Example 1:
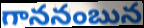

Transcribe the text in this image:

గాననంబున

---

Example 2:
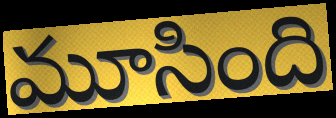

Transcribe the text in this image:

మూసింది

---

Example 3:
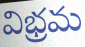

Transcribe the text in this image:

విభ్రమ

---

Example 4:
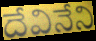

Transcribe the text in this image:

దేవినేని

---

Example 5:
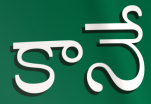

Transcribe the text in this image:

కానే